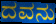
ದವನು